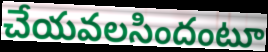
చేయవలసిందంటూ